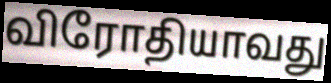
விரோதியாவது